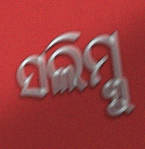
ସଲିମ୍କୁ